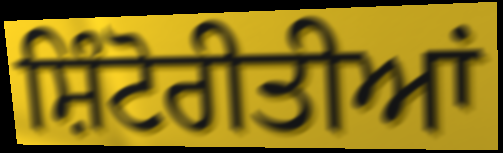
ਸ਼ਿੰਟੋਰੀਤੀਆਂ